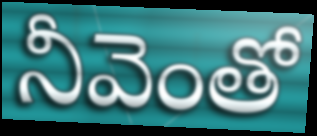
నీవెంతో